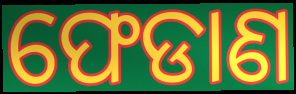
ଫେଡାଣ